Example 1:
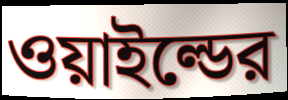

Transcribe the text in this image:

ওয়াইল্ডের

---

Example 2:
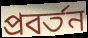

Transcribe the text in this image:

প্রবর্তন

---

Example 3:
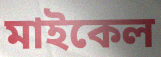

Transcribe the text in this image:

মাইকেল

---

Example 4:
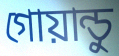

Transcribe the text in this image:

গোয়ান্ডু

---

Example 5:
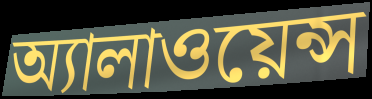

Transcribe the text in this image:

অ্যালাওয়েন্স